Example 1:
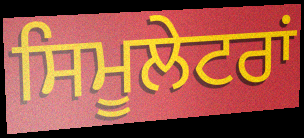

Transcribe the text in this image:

ਸਿਮੂਲੇਟਰਾਂ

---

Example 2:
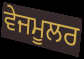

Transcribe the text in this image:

ਵੇਜਮੂਲਰ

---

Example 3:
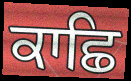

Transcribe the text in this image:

ਕਾਛਿ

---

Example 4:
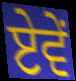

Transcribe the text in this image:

ਏਵੇਂ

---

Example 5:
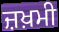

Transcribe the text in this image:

ਜ਼ਖ਼ਮੀ